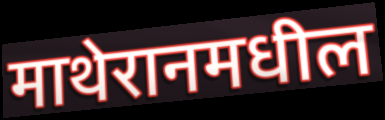
माथेरानमधील